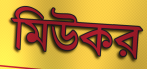
মিউকর